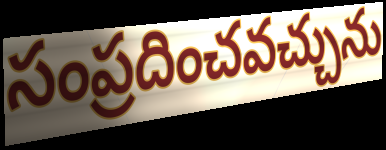
సంప్రదించవచ్చును